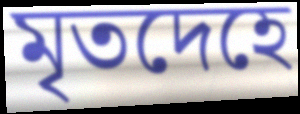
মৃতদেহে